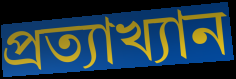
প্ৰত্যাখ্যান